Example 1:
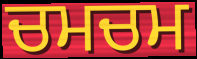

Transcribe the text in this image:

ਚਮਚਮ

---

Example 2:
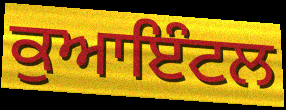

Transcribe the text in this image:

ਕੁਆਇੰਟਲ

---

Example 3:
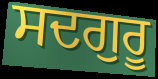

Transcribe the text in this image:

ਸਦਗੁਰੂ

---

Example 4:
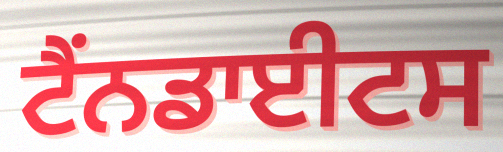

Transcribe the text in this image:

ਟੈਂਨਡਾਈਟਸ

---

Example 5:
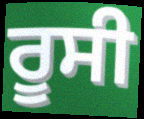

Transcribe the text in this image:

ਰੂਸੀ